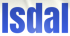
Isdal